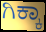
ಗಿಕ್ಕಾ